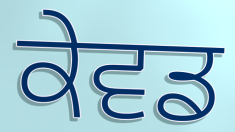
ਕੇਵਡ